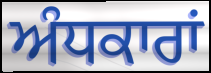
ਅੰਧਕਾਰਾਂ